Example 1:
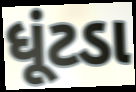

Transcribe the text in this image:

ધૂંટડા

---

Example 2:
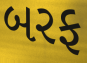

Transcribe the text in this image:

બરફ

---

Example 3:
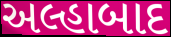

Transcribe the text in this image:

અલ્હાબાદ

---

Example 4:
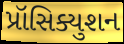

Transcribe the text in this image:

પ્રૉસિક્યુશન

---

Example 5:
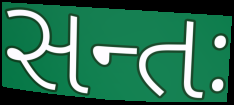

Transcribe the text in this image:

સન્તઃ